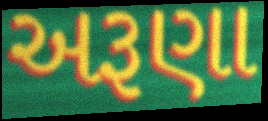
અરૂણા